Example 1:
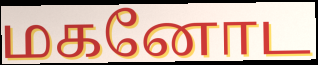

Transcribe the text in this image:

மகனோட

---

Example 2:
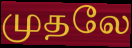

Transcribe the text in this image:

முதலே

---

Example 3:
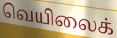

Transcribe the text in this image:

வெயிலைக்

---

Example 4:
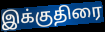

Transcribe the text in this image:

இக்குதிரை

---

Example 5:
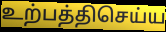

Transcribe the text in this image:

உற்பத்திசெய்ய